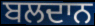
ਬਲਦਾਨ